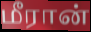
மீரான்